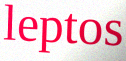
leptos